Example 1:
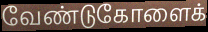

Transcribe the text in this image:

வேண்டுகோளைக்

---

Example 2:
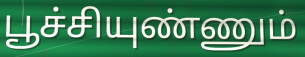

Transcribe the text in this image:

பூச்சியுண்ணும்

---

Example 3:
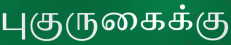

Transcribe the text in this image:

புகுருகைக்கு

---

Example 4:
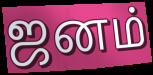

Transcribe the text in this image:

ஜனம்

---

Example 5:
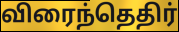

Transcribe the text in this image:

விரைந்தெதிர்